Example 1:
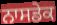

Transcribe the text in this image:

ਨਾਸਡੇਕ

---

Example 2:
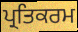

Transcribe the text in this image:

ਪ੍ਰਤਿਕਰਮ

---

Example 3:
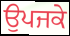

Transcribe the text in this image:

ਉਪਜਕੇ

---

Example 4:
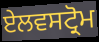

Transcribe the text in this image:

ਏਲਵਸਟ੍ਰੋਮ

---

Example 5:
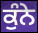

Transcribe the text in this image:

ਕੁੰਨੇ